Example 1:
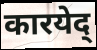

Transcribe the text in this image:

कारयेद्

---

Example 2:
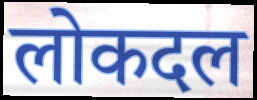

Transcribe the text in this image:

लोकदल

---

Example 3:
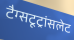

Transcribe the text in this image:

टैग्सटूट्रांसलेट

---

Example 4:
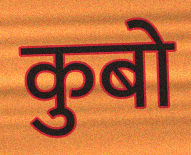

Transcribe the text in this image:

कुबो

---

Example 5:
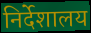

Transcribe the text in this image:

निर्देशालय